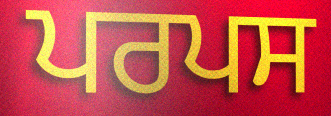
ਪਰਪਸ